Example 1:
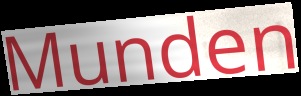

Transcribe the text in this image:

Munden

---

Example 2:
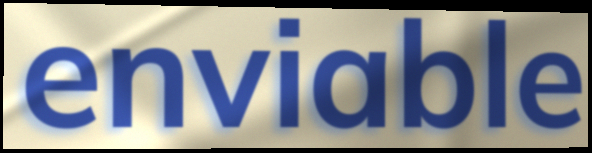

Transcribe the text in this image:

enviable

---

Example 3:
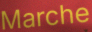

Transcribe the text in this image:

Marche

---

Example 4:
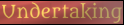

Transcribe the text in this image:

Undertaking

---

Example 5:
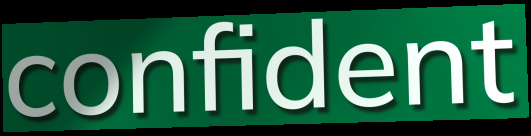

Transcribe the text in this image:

confident